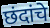
छंदांचे